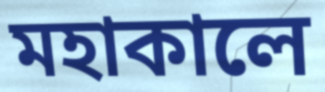
মহাকালে